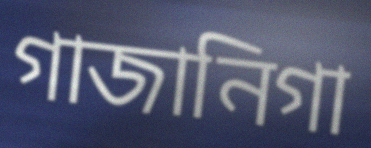
গাজানিগা